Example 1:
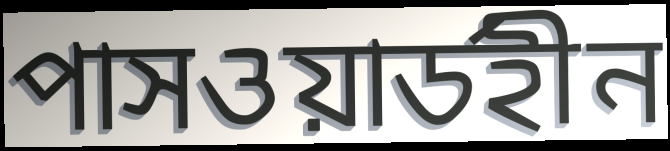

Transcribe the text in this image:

পাসওয়ার্ডহীন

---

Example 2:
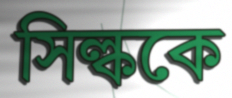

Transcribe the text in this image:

সিল্ককে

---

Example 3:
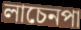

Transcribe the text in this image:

লাচেনপা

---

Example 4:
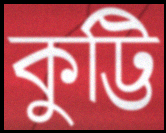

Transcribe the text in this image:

কুট্টি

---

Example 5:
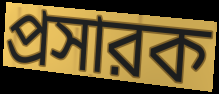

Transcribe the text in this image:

প্রসারক